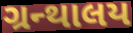
ગ્રન્થાલય